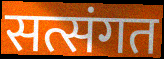
सत्संगत